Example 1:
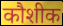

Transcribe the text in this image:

कौशीक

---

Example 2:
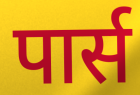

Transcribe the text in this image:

पार्स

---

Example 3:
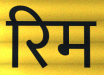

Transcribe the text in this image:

रिम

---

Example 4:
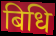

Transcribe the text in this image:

बिधि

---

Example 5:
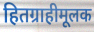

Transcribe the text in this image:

हितग्राहीमूलक